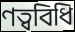
ণত্ববিধি